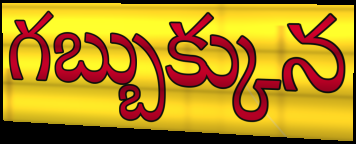
గబ్బుక్కున